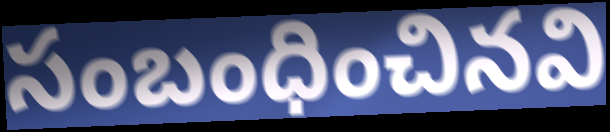
సంబంధించినవి